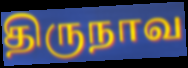
திருநாவ